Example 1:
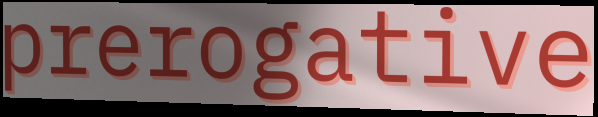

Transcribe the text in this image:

prerogative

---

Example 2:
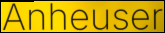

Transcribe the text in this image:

Anheuser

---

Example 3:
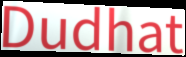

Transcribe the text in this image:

Dudhat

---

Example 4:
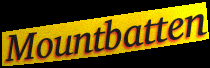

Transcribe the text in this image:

Mountbatten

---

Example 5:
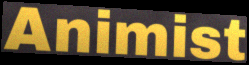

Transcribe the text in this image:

Animist